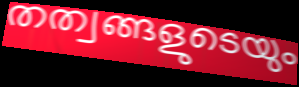
തത്വങ്ങളുടെയും